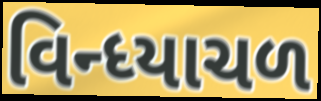
વિન્ધ્યાચળ